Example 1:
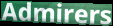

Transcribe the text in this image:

Admirers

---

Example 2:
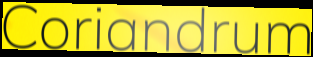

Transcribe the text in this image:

Coriandrum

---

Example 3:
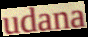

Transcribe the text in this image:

udana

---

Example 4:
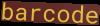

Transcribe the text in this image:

barcode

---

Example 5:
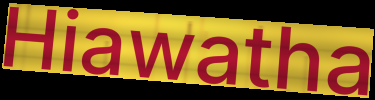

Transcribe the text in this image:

Hiawatha